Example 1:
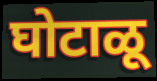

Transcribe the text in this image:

घोटाळू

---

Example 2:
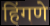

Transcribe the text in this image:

हिंगणे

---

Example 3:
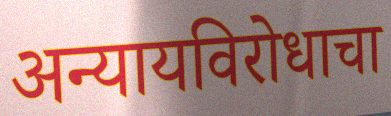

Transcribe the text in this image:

अन्यायविरोधाचा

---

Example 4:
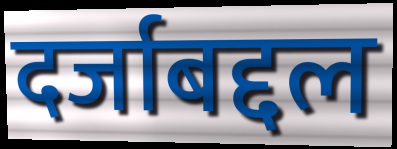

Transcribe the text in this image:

दर्जाबद्दल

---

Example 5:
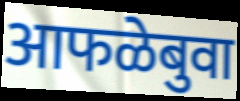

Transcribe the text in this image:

आफळेबुवा